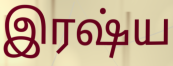
இரஷ்ய